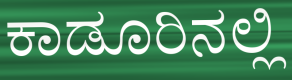
ಕಾಡೂರಿನಲ್ಲಿ